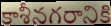
కాశీనగరానికి